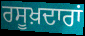
ਰਸੂਖ਼ਦਾਰਾਂ